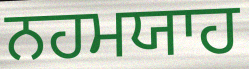
ਨਹਮਯਾਹ